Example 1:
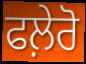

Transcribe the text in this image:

ਫਲ਼ੇਰੋ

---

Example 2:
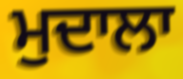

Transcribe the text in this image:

ਮੁਦਾਲਾ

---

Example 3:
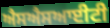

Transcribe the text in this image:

ਐਸਐਸਆਈਟੀ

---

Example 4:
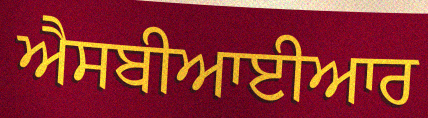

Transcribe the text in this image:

ਐਸਬੀਆਈਆਰ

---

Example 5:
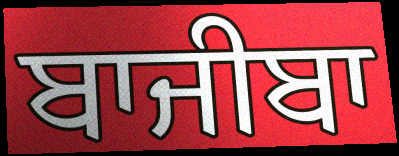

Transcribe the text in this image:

ਬਾਜੀਬਾ